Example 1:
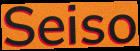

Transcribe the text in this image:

Seiso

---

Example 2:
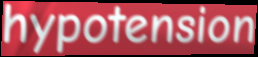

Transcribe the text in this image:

hypotension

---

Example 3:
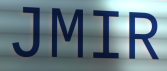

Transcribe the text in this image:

JMIR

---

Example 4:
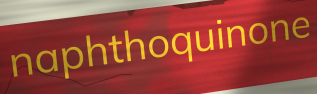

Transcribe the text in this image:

naphthoquinone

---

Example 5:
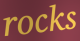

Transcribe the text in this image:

rocks